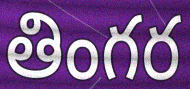
తింగర